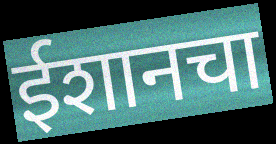
ईशानचा